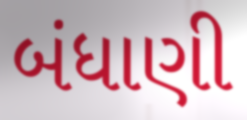
બંધાણી